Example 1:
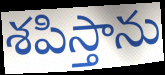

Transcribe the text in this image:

శపిస్తాను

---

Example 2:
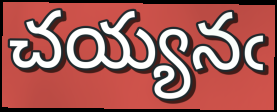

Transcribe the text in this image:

చయ్యనఁ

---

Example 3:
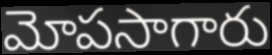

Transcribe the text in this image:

మోపసాగారు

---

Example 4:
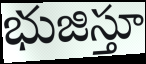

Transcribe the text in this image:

భుజిస్తూ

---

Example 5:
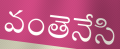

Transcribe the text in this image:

వంతెనేసి